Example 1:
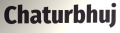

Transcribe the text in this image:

Chaturbhuj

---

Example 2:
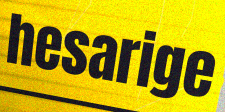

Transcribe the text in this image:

hesarige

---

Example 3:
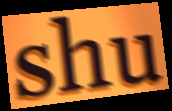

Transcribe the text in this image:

shu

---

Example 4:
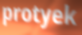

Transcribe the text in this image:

protyek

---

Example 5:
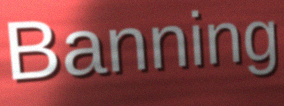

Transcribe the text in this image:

Banning